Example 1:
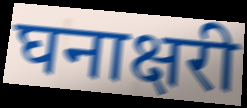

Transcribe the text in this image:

घनाक्षरी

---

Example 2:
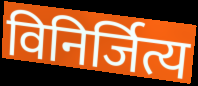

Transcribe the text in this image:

विनिर्जित्य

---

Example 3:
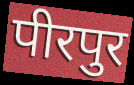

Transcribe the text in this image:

पीरपुर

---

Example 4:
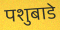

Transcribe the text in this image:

पशुबाडे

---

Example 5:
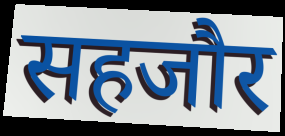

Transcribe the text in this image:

सहजौर